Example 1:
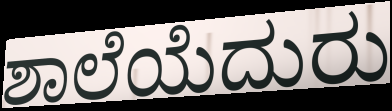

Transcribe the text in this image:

ಶಾಲೆಯೆದುರು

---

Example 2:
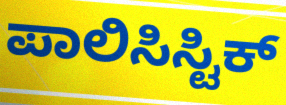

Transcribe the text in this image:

ಪಾಲಿಸಿಸ್ಟಿಕ್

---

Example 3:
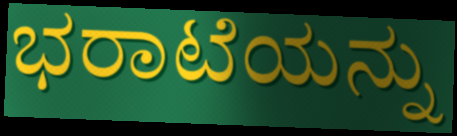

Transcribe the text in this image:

ಭರಾಟೆಯನ್ನು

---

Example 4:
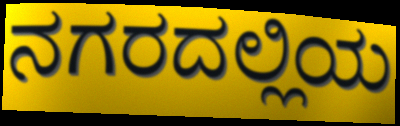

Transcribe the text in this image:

ನಗರದಲ್ಲಿಯ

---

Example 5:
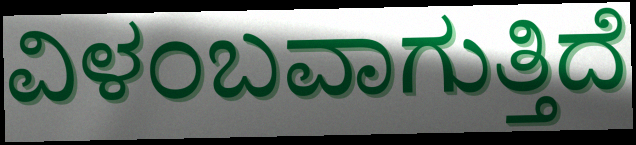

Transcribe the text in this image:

ವಿಳಂಬವಾಗುತ್ತಿದೆ